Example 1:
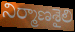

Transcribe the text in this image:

నిర్మాణశైలి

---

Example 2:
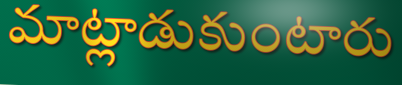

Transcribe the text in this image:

మాట్లాడుకుంటారు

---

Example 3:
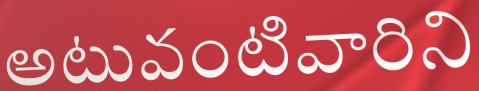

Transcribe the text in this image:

అటువంటివారిని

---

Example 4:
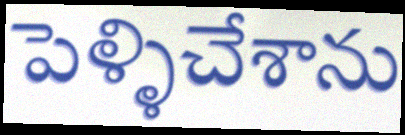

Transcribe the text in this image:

పెళ్ళిచేశాను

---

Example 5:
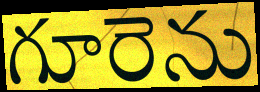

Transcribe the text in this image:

గూరెను